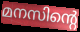
മനസിന്റെ